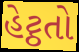
હેટ્ઠતો